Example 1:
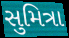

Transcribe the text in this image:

સુમિત્રા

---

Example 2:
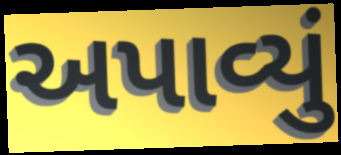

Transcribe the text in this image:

અપાવ્યું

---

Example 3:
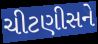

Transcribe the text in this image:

ચીટણીસને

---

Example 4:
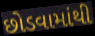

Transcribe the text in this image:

છોડવામાંથી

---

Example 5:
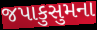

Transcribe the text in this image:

જપાકુસુમના